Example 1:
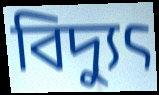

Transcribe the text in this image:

বিদ্যুৎ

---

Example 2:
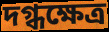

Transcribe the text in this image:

দগ্ধক্ষেত্র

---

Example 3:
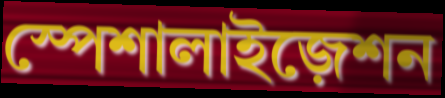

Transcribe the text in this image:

স্পেশালাইজ়েশন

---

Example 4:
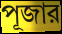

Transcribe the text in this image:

পূজার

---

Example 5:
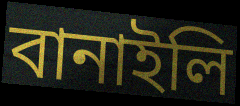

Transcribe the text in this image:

বানাইলি